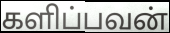
களிப்பவன்